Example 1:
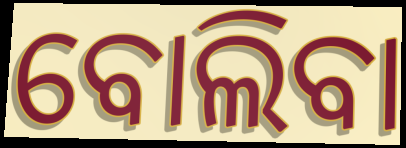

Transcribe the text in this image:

ବୋଲିବା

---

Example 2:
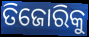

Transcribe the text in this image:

ତିଜୋରିକୁ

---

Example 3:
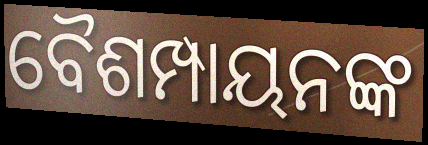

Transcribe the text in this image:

ବୈଶମ୍ପାୟନଙ୍କ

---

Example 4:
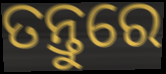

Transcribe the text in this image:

ତନ୍ତୁରେ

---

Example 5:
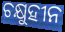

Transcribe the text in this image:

ଚକ୍ଷୁହୀନ